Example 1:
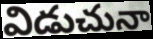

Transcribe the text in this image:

విడుచునా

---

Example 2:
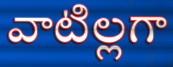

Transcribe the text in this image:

వాటిల్లగా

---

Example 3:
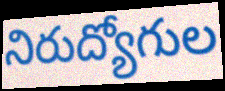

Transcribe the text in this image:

నిరుద్యోగుల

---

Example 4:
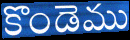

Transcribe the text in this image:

కొండెము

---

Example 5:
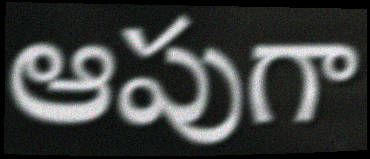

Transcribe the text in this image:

ఆపుగా